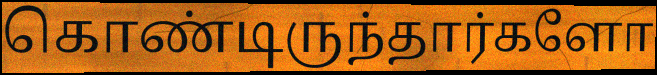
கொண்டிருந்தார்களோ